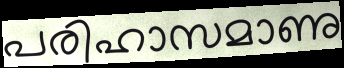
പരിഹാസമാണു